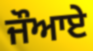
ਜੌਆਏ